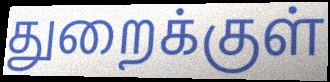
துறைக்குள்